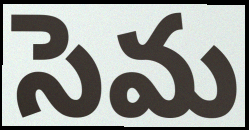
సెమ